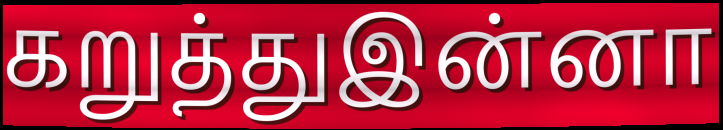
கறுத்துஇன்னா